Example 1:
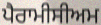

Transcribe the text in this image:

ਪੈਰਾਮੀਸੀਅਮ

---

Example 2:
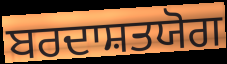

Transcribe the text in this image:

ਬਰਦਾਸ਼ਤਯੋਗ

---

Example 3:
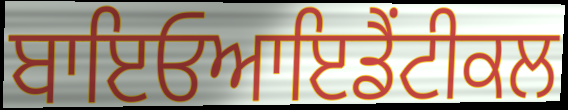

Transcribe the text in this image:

ਬਾਇਓਆਇਡੈਂਟੀਕਲ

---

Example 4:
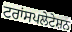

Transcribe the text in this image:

ਟਰਾਂਸਪਲੇਟੇਸ਼ਨ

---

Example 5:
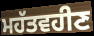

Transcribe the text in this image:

ਮਹੱਤਵਹੀਣ